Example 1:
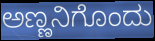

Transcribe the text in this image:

ಅಣ್ಣನಿಗೊಂದು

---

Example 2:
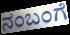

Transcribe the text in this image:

ನಂಬಂಗೆ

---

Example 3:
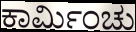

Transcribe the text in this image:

ಕಾರ್ಮಿಂಚು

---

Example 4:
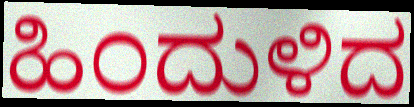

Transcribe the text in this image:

ಹಿಂದುಳಿದ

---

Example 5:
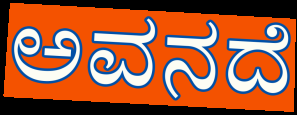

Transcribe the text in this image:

ಅವನದೆ